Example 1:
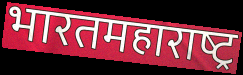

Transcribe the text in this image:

भारतमहाराष्ट्र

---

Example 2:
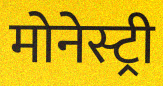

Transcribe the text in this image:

मोनेस्‍ट्री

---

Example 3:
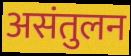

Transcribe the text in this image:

असंतुलन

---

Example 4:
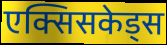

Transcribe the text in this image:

एक्सिसकेड्स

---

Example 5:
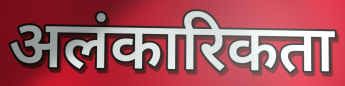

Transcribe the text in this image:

अलंकारिकता